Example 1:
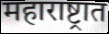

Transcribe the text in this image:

महाराष्ट्रात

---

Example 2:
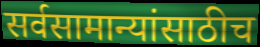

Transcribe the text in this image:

सर्वसामान्यांसाठीच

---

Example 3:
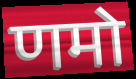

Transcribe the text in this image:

णमो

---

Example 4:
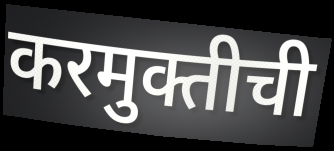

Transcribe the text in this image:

करमुक्तीची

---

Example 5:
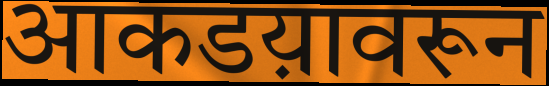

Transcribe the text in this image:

आकडय़ावरून